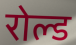
रोल्ड